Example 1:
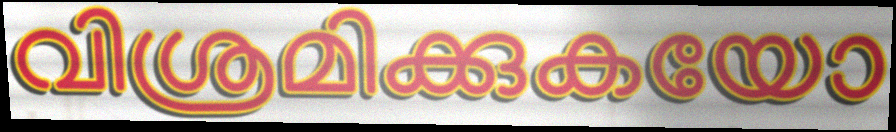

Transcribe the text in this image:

വിശ്രമിക്കുകയോ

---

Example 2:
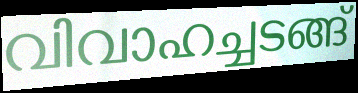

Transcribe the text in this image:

വിവാഹച്ചടങ്ങ്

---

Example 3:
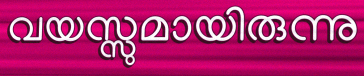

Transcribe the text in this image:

വയസ്സുമായിരുന്നു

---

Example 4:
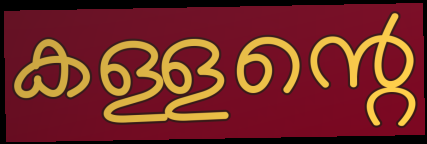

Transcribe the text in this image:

കള്ളന്റെ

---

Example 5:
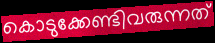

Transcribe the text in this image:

കൊടുക്കേണ്ടിവരുന്നത്